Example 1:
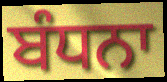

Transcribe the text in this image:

ਬੰਧਨਾ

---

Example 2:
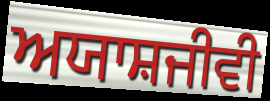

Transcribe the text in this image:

ਅਯਾਸ਼ਜੀਵੀ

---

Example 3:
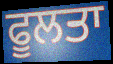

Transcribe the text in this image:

ਫੂਲਤਾ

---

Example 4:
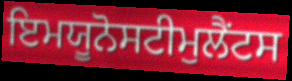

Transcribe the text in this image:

ਇਮਯੂਨੋਸਟੀਮੁਲੈਂਟਸ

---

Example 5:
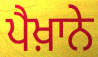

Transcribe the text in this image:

ਪੈਖ਼ਾਨੇ